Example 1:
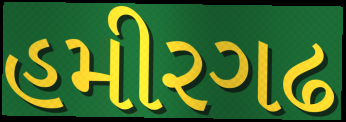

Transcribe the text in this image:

હમીરગઢ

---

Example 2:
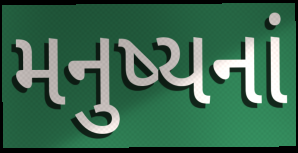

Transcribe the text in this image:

મનુષ્યનાં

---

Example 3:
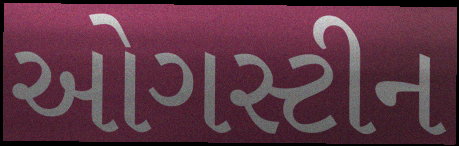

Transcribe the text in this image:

ઓગસ્ટીન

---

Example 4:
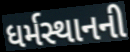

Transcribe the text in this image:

ધર્મસ્થાનની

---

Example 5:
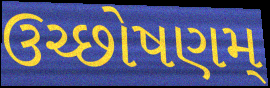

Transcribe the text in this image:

ઉચ્છોષણમ્